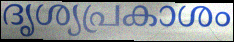
ദൃശ്യപ്രകാശം